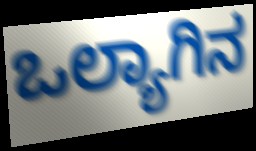
ಒಲ್ಯಾಗಿನ